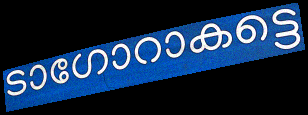
ടാഗോറാകട്ടെ